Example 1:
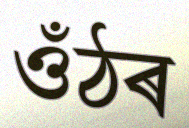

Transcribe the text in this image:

ওঁঠৰ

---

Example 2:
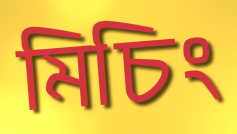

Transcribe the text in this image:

মিচিং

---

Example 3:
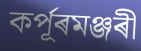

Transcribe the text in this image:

কৰ্পূৰমঞ্জৰী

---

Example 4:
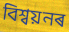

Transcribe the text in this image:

বিশ্বয়নৰ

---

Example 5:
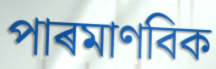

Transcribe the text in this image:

পাৰমাণবিক